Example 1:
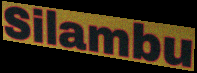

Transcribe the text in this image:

Silambu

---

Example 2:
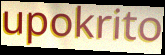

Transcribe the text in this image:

upokrito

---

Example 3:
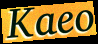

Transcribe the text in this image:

Kaeo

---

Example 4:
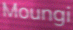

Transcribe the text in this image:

Moungi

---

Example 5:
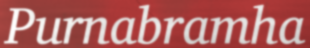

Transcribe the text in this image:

Purnabramha